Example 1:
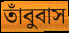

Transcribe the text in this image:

তাঁবুবাস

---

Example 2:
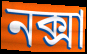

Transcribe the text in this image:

নক্সা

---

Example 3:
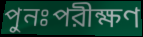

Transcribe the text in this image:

পুনঃপরীক্ষণ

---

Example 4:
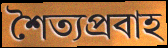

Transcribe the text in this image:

শৈত্যপ্রবাহ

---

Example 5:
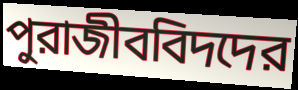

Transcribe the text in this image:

পুরাজীববিদদের